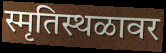
स्मृतिस्थळावर